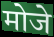
मोजे